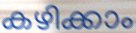
കഴിക്കാം